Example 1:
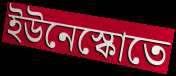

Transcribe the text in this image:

ইউনেস্কোতে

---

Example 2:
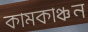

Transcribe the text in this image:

কামকাঞ্চন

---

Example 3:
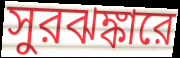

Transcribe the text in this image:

সুরঝঙ্কারে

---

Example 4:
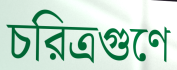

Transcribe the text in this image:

চরিত্রগুণে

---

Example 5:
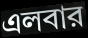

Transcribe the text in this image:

এলবার